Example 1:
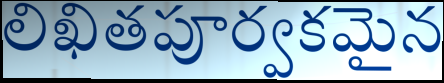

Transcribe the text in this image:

లిఖితపూర్వకమైన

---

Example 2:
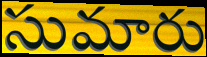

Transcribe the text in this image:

సుమారు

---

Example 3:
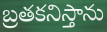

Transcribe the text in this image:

బ్రతకనిస్తాను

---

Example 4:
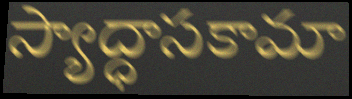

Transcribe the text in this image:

స్యాద్ధాసకామా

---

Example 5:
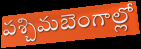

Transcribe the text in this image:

పశ్చిమబెంగాల్లో